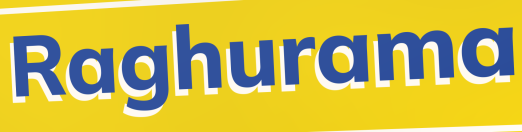
Raghurama